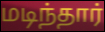
மடிந்தார்